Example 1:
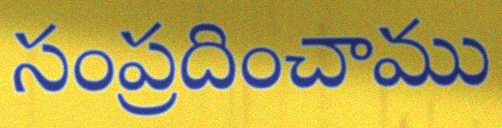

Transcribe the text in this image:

సంప్రదించాము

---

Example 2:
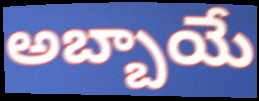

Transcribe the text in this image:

అబ్బాయే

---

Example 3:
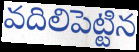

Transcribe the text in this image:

వదిలిపెట్టిన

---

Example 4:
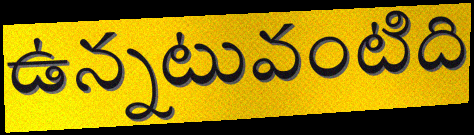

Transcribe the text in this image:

ఉన్నటువంటిది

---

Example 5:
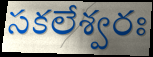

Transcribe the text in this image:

సకలేశ్వరః